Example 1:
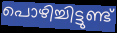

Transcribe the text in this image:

പൊഴിച്ചിട്ടുണ്ട്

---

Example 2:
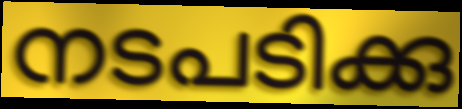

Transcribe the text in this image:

നടപടിക്കു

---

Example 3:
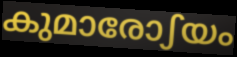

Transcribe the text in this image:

കുമാരോഽയം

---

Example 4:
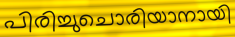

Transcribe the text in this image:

പിരിച്ചുചൊരിയാനായി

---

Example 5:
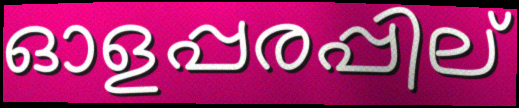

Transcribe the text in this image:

ഓളപ്പരപ്പില്